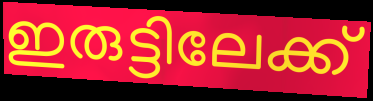
ഇരുട്ടിലേക്ക്